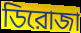
ডিরোজা